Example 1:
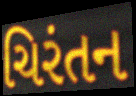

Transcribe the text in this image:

ચિરંતન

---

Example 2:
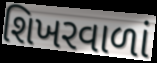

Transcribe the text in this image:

શિખરવાળાં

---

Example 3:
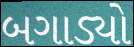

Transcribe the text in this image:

બગાડ્યો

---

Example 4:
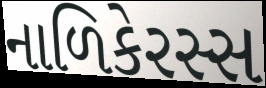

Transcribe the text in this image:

નાળિકેરસ્સ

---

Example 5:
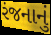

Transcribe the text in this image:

રંજનાનું